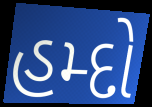
હમ્દો